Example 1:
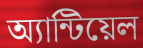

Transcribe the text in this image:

অ্যান্টিয়েল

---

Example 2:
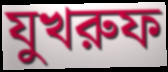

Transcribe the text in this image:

যুখরুফ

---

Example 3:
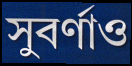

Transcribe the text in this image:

সুবর্ণাও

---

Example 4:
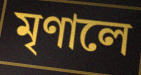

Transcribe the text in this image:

মৃণালে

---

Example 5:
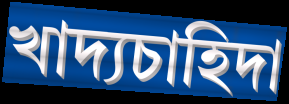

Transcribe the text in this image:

খাদ্যচাহিদা